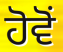
ਹੋਵੋਂ